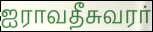
ஐராவதீசுவரர்